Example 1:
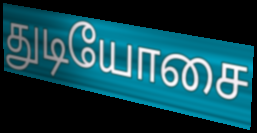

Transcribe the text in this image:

துடியோசை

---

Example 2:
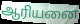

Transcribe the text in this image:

ஆரியனை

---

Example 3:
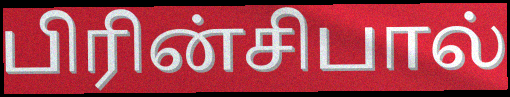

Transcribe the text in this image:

பிரின்சிபால்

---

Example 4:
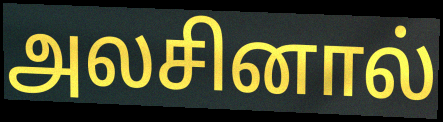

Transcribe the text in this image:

அலசினால்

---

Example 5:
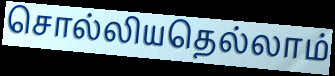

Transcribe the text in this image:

சொல்லியதெல்லாம்